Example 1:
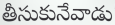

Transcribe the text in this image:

తీసుకునేవాడు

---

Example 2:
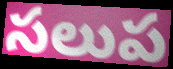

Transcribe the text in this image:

సలుప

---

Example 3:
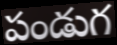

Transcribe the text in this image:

పండుగ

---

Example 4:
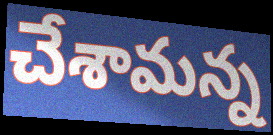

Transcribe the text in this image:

చేశామన్న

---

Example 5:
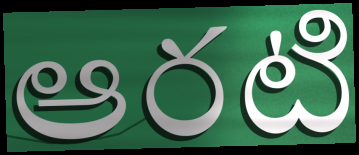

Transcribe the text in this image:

ఆరటి